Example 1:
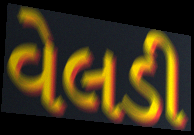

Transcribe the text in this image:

વેલડી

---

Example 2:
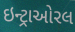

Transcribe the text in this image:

ઇન્ટ્રાઓરલ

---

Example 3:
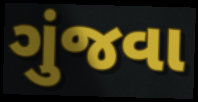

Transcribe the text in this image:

ગુંજવા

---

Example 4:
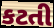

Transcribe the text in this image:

કટતી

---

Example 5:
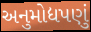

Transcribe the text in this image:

અનુમોદ્યપણું